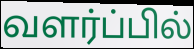
வளர்ப்பில்